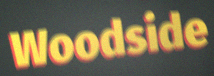
Woodside